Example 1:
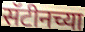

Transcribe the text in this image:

सॅटीनच्या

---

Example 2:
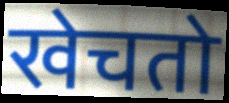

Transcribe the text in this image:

खेचतो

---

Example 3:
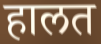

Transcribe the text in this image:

हालत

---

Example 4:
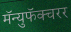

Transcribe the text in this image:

मॅन्युफॅक्चरर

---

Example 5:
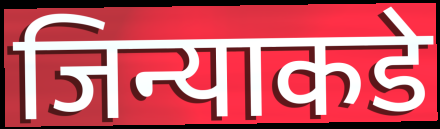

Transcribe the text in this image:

जिन्याकडे